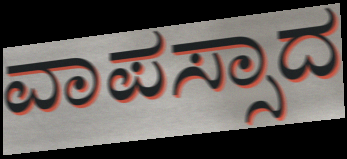
ವಾಪಸ್ಸಾದ